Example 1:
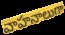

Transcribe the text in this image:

వాహనాలుగా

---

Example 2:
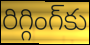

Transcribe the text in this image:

రిగ్గింగ్‌కు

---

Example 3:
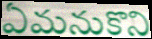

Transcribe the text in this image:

ఏమనుకొని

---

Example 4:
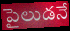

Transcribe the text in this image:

పైలుడనే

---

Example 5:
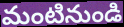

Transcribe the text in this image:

మంటినుండి